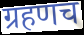
ग्रहणच